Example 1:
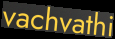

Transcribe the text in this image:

vachvathi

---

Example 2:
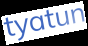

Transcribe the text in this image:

tyatun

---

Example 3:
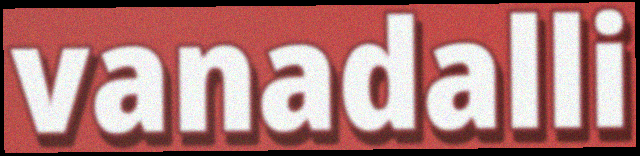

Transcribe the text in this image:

vanadalli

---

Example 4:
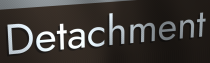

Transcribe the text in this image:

Detachment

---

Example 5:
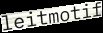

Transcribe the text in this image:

leitmotif